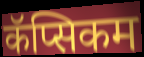
कॅप्सिकम